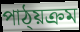
পাঠ্য়ক্ৰম